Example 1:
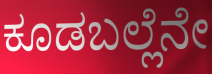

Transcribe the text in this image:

ಕೂಡಬಲ್ಲೆನೇ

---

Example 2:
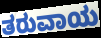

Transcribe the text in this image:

ತರುವಾಯ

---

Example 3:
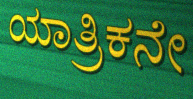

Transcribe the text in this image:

ಯಾತ್ರಿಕನೇ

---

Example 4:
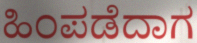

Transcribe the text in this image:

ಹಿಂಪಡೆದಾಗ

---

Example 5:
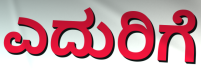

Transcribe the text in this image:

ಎದುರಿಗೆ